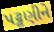
પટ્ટણીને